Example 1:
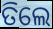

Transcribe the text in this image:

ତିଲେ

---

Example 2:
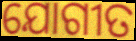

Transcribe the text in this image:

ଯୋଗୀତ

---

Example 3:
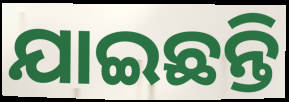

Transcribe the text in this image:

ଯାଇଛନ୍ତି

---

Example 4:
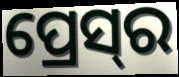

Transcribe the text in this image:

ପ୍ରେସ୍‌ର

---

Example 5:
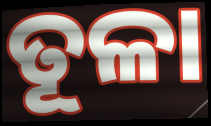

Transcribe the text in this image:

ତୂଳା